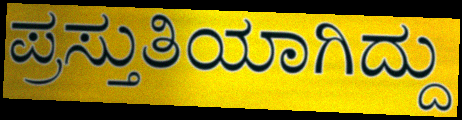
ಪ್ರಸ್ತುತಿಯಾಗಿದ್ದು